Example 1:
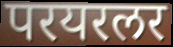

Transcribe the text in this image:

परयरलर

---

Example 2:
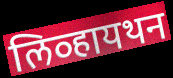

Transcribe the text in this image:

लिव्हायथन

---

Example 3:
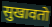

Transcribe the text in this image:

सुखावतो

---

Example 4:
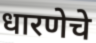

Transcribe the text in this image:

धारणेचे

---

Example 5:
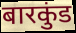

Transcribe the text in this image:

बारकुंड